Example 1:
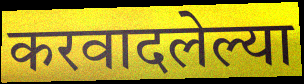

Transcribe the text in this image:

करवादलेल्या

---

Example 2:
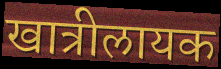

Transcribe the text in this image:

खात्रीलायक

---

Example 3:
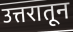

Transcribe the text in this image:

उत्तरातून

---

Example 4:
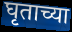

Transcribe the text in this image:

घृताच्या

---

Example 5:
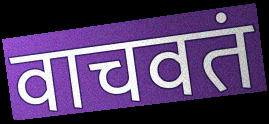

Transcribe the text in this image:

वाचवतं